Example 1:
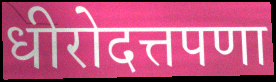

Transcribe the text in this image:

धीरोदत्तपणा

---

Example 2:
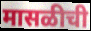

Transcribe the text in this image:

मासळीची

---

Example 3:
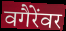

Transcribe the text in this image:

वगैरेंवर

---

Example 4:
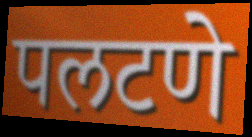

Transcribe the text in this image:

पलटणे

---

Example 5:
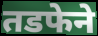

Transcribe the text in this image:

तडफेने